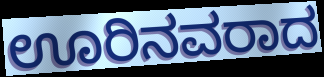
ಊರಿನವರಾದ